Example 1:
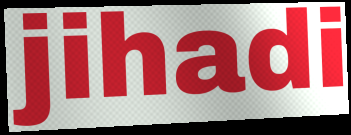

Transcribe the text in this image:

jihadi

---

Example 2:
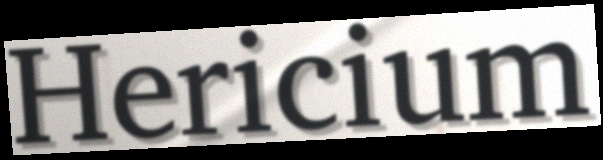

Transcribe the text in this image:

Hericium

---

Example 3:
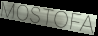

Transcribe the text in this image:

MOSTOFA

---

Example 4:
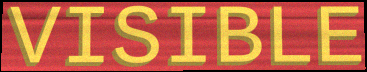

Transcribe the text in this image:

VISIBLE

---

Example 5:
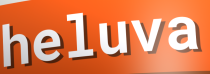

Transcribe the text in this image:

heluva